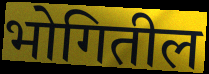
भोगितील